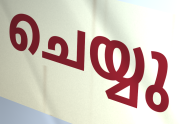
ചെയ്യു